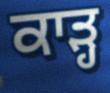
ਕਾੜ੍ਹ